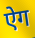
ऐग